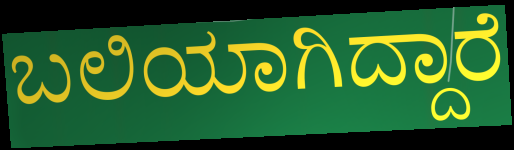
ಬಲಿಯಾಗಿದ್ದಾರೆ